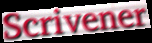
Scrivener